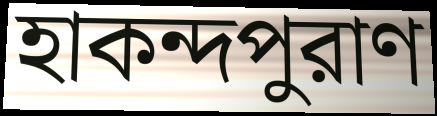
হাকন্দপুরাণ